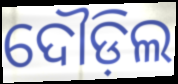
ଦୌଡ଼ିଲ